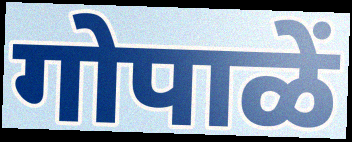
गोपाळें